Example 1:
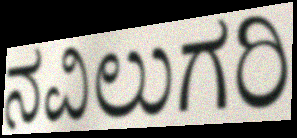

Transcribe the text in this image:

ನವಿಲುಗರಿ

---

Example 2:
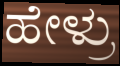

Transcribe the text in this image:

ಹೇಳ್ರು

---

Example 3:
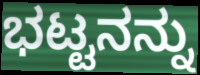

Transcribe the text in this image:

ಭಟ್ಟನನ್ನು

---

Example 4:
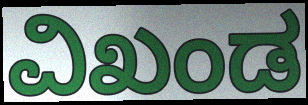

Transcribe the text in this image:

ವಿಖಂಡ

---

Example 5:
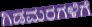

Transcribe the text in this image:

ಗಿಡಮರಗಳಿಗೆ